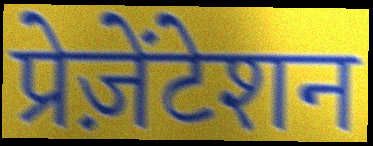
प्रेज़ेंटेशन